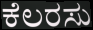
ಕೆಲರಸು